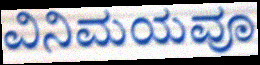
ವಿನಿಮಯವೂ